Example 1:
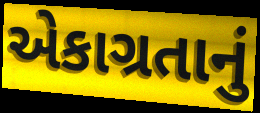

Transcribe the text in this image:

એકાગ્રતાનું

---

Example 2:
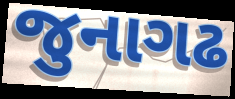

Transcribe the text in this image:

જુનાગઢ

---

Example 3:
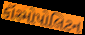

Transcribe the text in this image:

કૉસ્મોપોલિટન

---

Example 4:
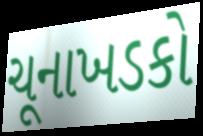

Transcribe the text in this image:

ચૂનાખડકો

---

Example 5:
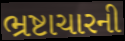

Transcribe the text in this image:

ભ્રષ્ટાચારની